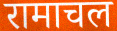
रामाचल